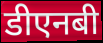
डीएनबी